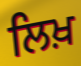
ਲਿਖ਼